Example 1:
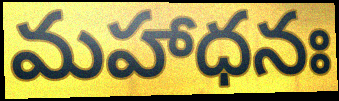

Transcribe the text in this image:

మహాధనః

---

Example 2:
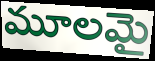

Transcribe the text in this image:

మూలమై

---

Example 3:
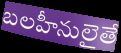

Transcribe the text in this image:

బలహీనులైతే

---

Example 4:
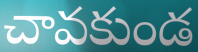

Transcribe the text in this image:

చావకుండ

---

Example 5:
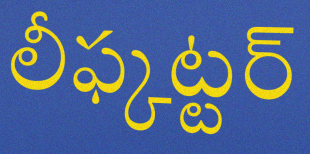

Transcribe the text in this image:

లీఫ్కట్టర్